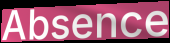
Absence